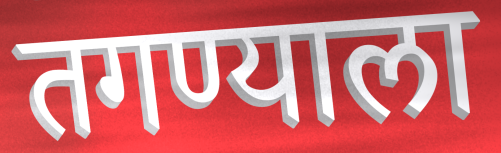
तगण्याला